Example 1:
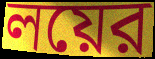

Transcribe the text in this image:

লয়ের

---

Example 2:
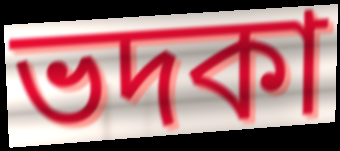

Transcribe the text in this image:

ভদকা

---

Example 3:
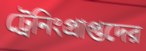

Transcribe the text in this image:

ট্রেনিংপ্রাপ্তদের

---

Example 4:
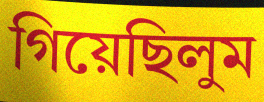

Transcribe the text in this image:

গিয়েছিলুম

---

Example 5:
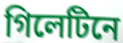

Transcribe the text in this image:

গিলেটিনে